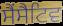
ਸੈਂਸੈਟਿਵ